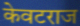
केवटराज